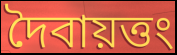
দৈবায়ত্তং